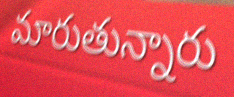
మారుతున్నారు